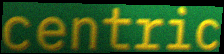
centric